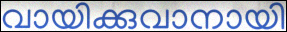
വായിക്കുവാനായി